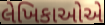
લેખિકાઓએ